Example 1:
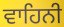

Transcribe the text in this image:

ਵਾਹਿਨੀ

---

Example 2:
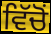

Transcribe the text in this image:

ਵਿੱਚੋੰ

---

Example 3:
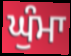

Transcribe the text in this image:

ਘੁੰਮਾ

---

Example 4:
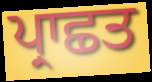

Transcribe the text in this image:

ਪ੍ਰਾਛਤ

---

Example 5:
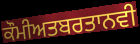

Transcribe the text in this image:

ਕੌਮੀਅਤਬਰਤਾਨਵੀ